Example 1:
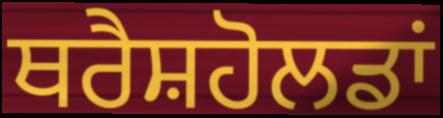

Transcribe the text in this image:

ਥਰੈਸ਼ਹੋਲਡਾਂ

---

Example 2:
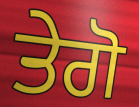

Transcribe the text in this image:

ਤੇਗੋ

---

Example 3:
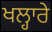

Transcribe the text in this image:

ਖਲ੍ਹਾਰੇ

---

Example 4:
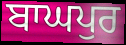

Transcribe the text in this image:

ਬਾਘਪੁਰ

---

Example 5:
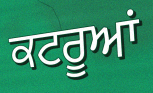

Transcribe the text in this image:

ਕਟਰੂਆਂ